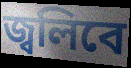
জ্বলিবে